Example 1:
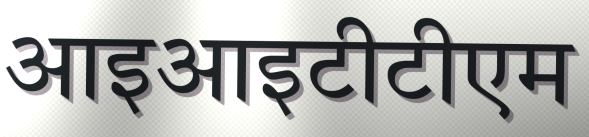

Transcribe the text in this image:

आइआइटीटीएम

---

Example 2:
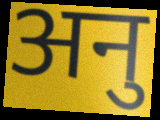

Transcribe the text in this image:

अनु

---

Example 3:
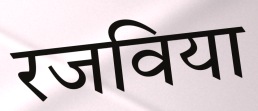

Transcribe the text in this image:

रजविया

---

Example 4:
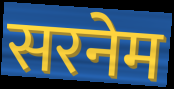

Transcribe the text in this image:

सरनेम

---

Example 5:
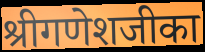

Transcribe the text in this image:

श्रीगणेशजीका